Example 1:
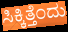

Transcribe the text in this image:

ಸಿಕ್ಕಿತ್ತೆಂದು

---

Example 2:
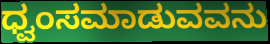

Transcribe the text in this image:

ಧ್ವಂಸಮಾಡುವವನು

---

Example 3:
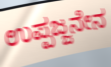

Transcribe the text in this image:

ಉಪ್ಪಜ್ಜನೇನ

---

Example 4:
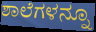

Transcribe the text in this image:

ಶಾಲೆಗಳನ್ನೂ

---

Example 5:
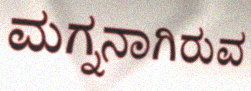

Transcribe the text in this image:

ಮಗ್ನನಾಗಿರುವ